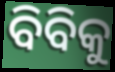
ବିବିକୁ